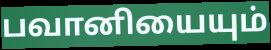
பவானியையும்